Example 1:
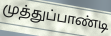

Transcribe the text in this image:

முத்துப்பாண்டி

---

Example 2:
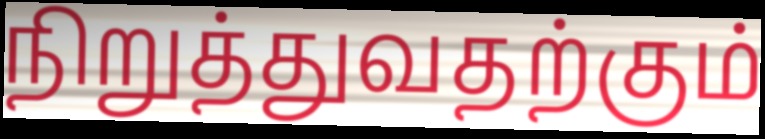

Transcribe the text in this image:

நிறுத்துவதற்கும்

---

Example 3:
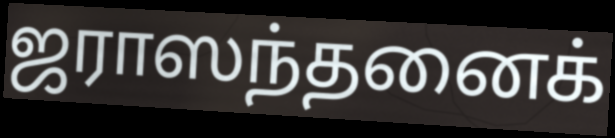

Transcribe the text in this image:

ஜராஸந்தனைக்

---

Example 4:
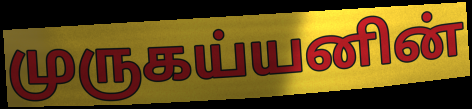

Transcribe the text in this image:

முருகய்யனின்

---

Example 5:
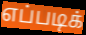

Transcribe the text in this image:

எப்படிக்